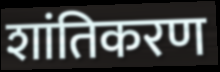
शांतिकरण